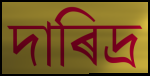
দাৰিদ্ৰ